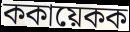
ককায়েকক